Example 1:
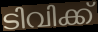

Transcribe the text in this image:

ടിവിക്ക്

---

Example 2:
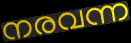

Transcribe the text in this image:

നരവന്ന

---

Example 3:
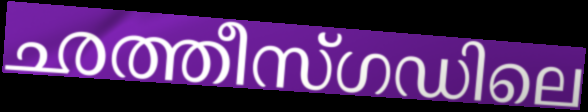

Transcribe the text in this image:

ഛത്തീസ്ഗഡിലെ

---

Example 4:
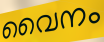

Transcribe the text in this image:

വൈനം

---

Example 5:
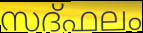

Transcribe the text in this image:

സദ്ഫലം